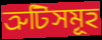
ত্ৰুটিসমূহ